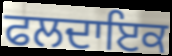
ਫਲਦਾਇਕ